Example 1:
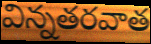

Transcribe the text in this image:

విన్నతరవాత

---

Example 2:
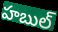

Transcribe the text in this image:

హబుల్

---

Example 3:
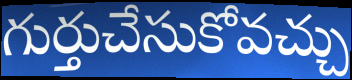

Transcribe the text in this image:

గుర్తుచేసుకోవచ్చు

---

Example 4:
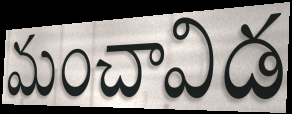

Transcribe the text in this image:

మంచావిడ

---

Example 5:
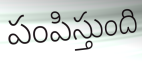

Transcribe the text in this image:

పంపిస్తుంది